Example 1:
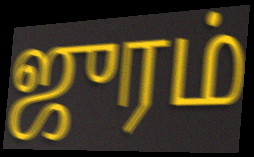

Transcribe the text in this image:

ஜுரம்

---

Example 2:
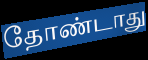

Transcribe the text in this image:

தோண்டாது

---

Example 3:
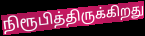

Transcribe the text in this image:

நிரூபித்திருக்கிறது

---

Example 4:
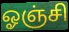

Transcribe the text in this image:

ஓஞ்சி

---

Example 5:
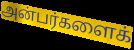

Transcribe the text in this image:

அன்பர்களைக்